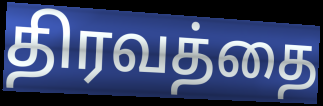
திரவத்தை